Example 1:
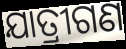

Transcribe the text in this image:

ଯାତ୍ରୀଗଣ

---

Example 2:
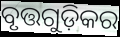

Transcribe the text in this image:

ବୃତ୍ତଗୁଡ଼ିକର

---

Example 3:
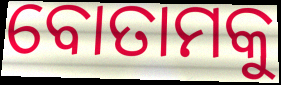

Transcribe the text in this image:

ବୋତାମକୁ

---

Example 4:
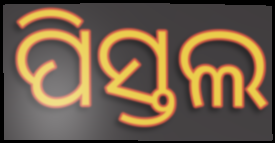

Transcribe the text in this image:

ପିସ୍ତଲ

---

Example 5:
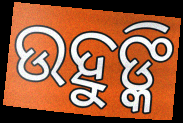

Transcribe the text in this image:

ଉହୁଙ୍କି